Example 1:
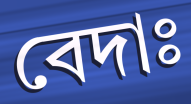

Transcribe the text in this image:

বেদাঃ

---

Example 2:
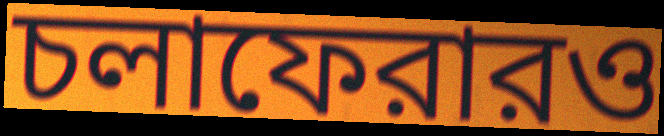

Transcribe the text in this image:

চলাফেরারও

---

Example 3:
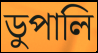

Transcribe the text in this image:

ডুপালি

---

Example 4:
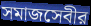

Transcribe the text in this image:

সমাজসেবীর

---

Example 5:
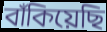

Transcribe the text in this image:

বাঁকিয়েছি